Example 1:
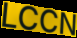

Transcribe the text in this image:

LCCN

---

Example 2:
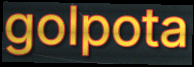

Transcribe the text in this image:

golpota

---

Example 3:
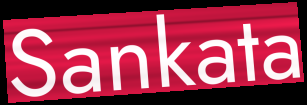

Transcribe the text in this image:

Sankata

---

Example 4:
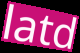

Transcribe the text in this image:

latd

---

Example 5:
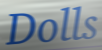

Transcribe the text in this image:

Dolls